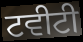
ਟਵੀਟੀ